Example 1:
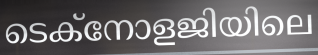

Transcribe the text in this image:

ടെക്നോളജിയിലെ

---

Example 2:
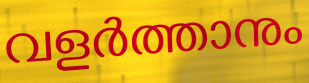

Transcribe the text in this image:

വളർത്താനും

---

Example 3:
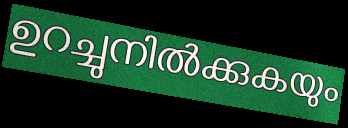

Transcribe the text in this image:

ഉറച്ചുനിൽക്കുകയും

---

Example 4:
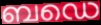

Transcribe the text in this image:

ബഡെ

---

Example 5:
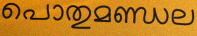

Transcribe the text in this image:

പൊതുമണ്ഡല